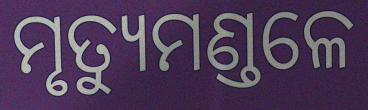
ମୃତ୍ୟୁମଣ୍ଡଳେ